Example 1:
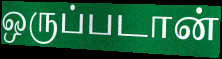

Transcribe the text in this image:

ஒருப்படான்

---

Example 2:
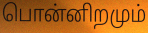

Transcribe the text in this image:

பொன்னிறமும்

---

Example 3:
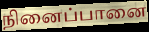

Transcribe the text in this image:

நினைப்பானை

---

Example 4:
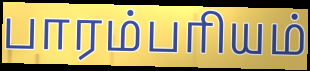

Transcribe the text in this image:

பாரம்பரியம்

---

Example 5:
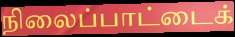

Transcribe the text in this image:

நிலைப்பாட்டைக்